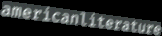
americanliterature